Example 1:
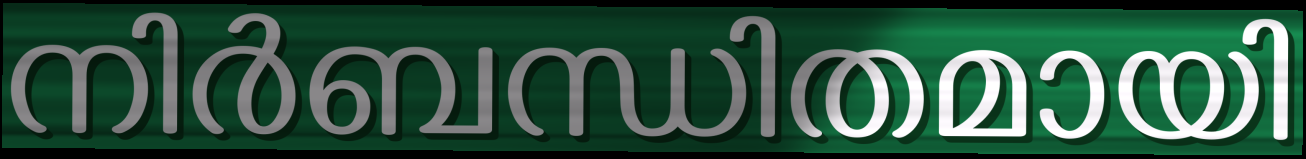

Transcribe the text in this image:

നിർബന്ധിതമായി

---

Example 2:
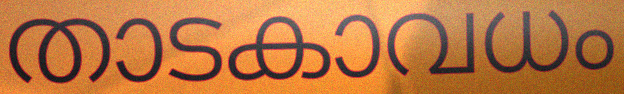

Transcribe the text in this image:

താടകാവധം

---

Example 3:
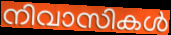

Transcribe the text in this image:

നിവാസികൾ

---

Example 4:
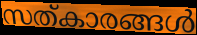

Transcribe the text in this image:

സത്കാരങ്ങൾ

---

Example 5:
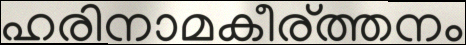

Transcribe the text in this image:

ഹരിനാമകീര്ത്തനം